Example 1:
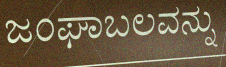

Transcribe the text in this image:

ಜಂಘಾಬಲವನ್ನು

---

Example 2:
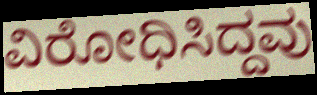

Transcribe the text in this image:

ವಿರೋಧಿಸಿದ್ದವು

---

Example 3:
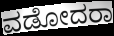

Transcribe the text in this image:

ವಡೋದರಾ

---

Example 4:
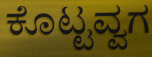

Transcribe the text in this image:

ಕೊಟ್ಟವ್ವಗ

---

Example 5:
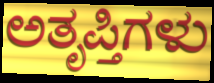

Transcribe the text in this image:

ಅತೃಪ್ತಿಗಳು